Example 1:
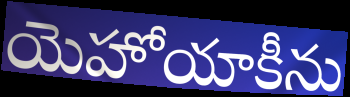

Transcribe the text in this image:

యెహోయాకీను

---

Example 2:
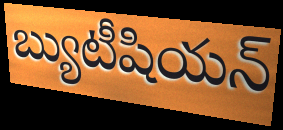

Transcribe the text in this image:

బ్యుటీషియన్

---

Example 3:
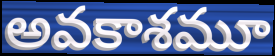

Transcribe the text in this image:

అవకాశమూ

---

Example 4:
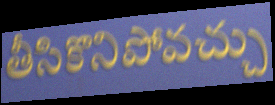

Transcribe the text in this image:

తీసికొనిపోవచ్చు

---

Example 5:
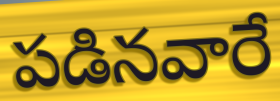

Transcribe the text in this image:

పడినవారే